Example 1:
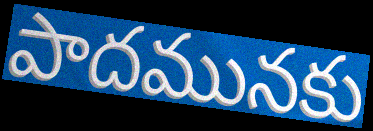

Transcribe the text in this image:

పాదమునకు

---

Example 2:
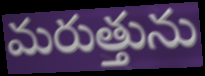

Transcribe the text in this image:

మరుత్తును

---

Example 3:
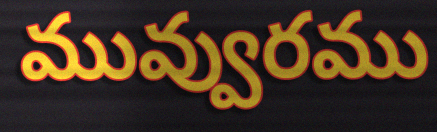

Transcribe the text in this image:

మువ్వురము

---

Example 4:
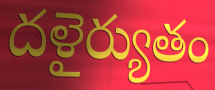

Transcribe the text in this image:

దళైర్యుతం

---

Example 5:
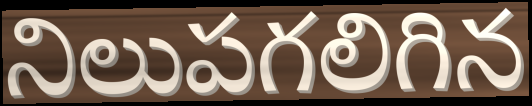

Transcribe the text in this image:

నిలుపగలిగిన